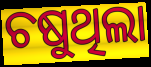
ଚଷୁଥିଲା